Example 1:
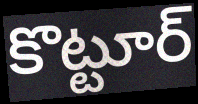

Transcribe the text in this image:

కొట్టూర్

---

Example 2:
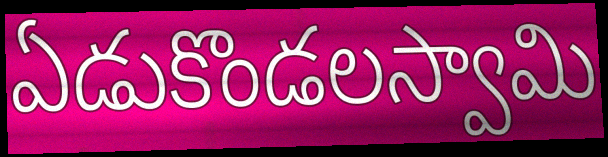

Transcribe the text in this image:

ఏడుకొండలస్వామి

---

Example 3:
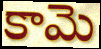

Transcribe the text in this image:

కామె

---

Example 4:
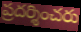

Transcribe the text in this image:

ప్రదర్శించరు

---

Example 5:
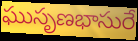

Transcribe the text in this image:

ఘుసృణభాసురే